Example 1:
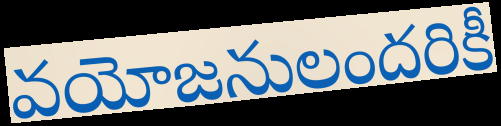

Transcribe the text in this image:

వయోజనులందరికీ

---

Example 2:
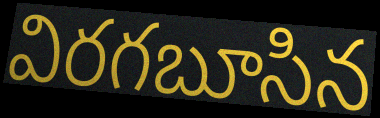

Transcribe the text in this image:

విరగబూసిన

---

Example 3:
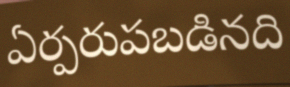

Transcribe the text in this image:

ఏర్పరుపబడినది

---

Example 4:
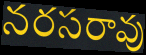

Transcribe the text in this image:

నరసరావు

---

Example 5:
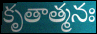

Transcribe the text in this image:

కృతాత్మనః